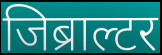
जिब्राल्टर